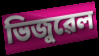
ভিজুৱেল